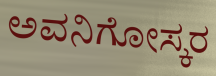
ಅವನಿಗೋಸ್ಕರ